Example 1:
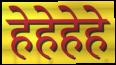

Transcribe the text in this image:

हेहेहेहे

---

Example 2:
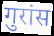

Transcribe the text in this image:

गुरांस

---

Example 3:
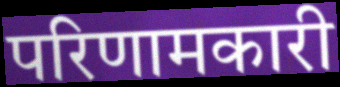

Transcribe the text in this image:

परिणामकारी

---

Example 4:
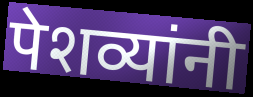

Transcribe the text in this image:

पेशव्यांनी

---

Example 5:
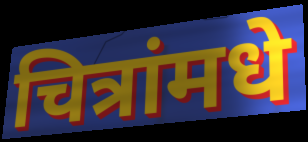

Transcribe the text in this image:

चित्रांमधे